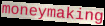
moneymaking